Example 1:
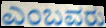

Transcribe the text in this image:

ಎಂಬವರು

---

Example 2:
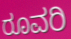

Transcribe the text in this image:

ರೂವರಿ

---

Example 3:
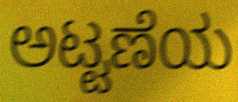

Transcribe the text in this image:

ಅಟ್ಟಣೆಯ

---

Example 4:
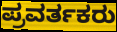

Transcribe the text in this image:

ಪ್ರವರ್ತಕರು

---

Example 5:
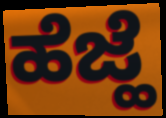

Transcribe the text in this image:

ಹೆಜ್ಹೆ